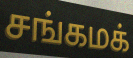
சங்கமக்